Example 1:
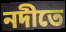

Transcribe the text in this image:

নদীতে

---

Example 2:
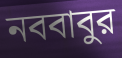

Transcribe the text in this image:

নববাবুর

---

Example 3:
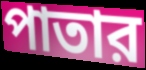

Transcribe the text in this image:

পাতার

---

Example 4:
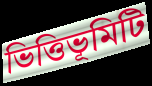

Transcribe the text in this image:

ভিত্তিভূমিটি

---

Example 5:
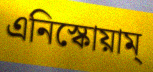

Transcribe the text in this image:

এনিস্কোয়াম্